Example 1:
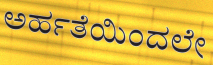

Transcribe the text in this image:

ಅರ್ಹತೆಯಿಂದಲೇ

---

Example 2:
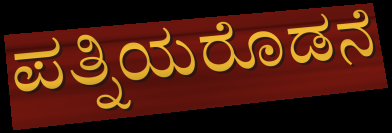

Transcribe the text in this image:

ಪತ್ನಿಯರೊಡನೆ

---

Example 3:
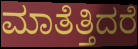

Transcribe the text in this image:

ಮಾತೆತ್ತಿದರೆ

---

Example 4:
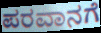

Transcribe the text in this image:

ಪರವಾನಗೆ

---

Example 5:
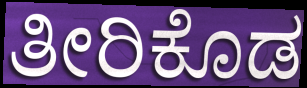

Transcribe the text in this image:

ತೀರಿಕೊಡ